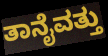
ತಾನೈವತ್ತು